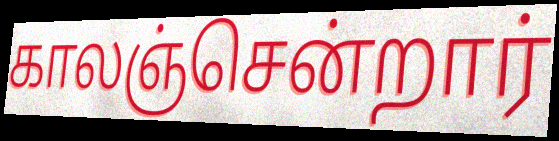
காலஞ்சென்றார்